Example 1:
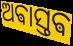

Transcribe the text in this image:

ଅଵାସ୍ତଵ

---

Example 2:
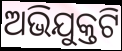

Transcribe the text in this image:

ଅଭିଯୁକ୍ତଟି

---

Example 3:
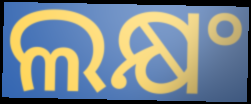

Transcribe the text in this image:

ଲକ୍ଷଂ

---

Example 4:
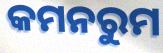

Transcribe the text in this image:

କମନରୁମ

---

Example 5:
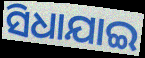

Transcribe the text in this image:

ସିଧାଯାଇ